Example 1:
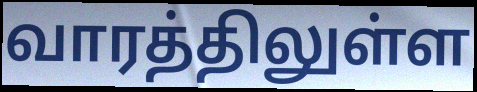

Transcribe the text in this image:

வாரத்திலுள்ள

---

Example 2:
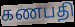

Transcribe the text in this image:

கணபதி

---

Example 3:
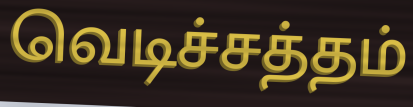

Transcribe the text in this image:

வெடிச்சத்தம்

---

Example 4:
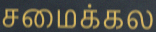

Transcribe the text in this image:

சமைக்கல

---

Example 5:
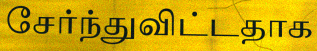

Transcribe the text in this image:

சேர்ந்துவிட்டதாக